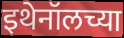
इथेनॉलच्या